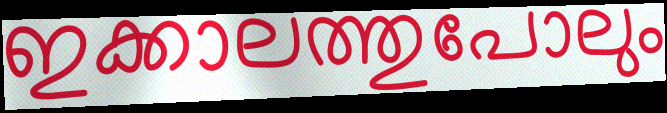
ഇക്കാലത്തുപോലും